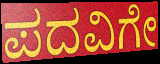
ಪದವಿಗೇ